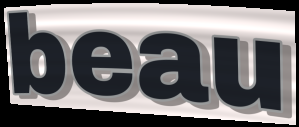
beau